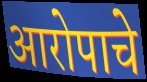
आरोपाचे